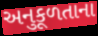
અનુકૂળતાના